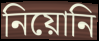
নিয়োনি